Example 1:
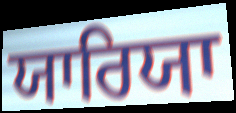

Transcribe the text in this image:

ਯਾਰਿਯਾ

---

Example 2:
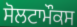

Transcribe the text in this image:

ਸੋਲਟਾਮੌਕਸ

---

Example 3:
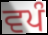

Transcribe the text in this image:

ਵਪੰ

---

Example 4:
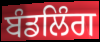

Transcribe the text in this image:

ਬੰਡਲਿੰਗ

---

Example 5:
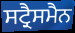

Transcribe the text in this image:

ਸਟ੍ਰੈਸਮੈਨ